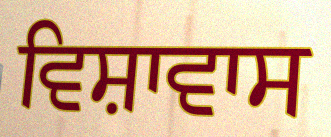
ਵਿਸ਼ਾਵਾਸ